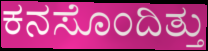
ಕನಸೊಂದಿತ್ತು